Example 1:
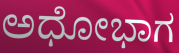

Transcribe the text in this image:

ಅಧೋಭಾಗ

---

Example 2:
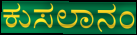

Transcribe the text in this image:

ಕುಸಲಾನಂ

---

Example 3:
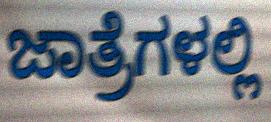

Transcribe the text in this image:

ಜಾತ್ರೆಗಳಲ್ಲಿ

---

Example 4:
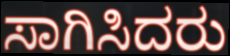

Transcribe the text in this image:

ಸಾಗಿಸಿದರು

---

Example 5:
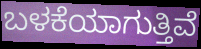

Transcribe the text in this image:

ಬಳಕೆಯಾಗುತ್ತಿವೆ